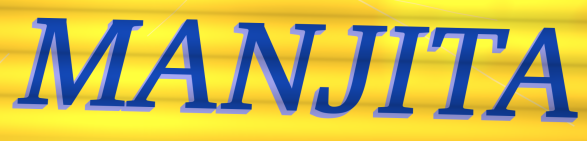
MANJITA